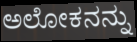
ಅಲೋಕನನ್ನು